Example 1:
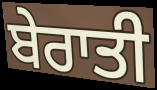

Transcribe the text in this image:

ਬੇਰਾਤੀ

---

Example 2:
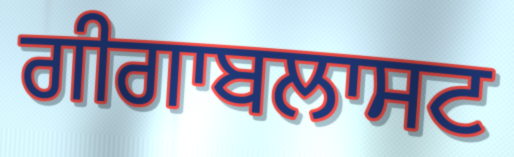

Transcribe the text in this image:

ਗੀਗਾਬਲਾਸਟ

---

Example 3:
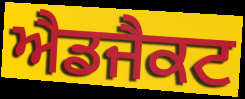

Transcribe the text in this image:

ਐਡਜੈਕਟ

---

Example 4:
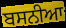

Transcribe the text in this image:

ਬਸਨੀਆ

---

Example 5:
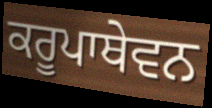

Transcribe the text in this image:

ਕਰੂਪਾਥੇਵਨ